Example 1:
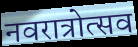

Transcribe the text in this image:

नवरात्रोत्सव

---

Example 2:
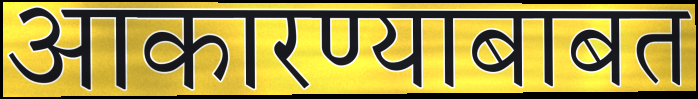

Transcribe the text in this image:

आकारण्याबाबत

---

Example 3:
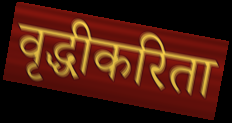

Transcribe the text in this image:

वृद्धीकरिता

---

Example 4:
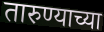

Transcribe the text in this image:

तारुण्याच्या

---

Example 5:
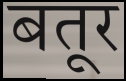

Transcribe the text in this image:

बतूर